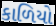
કાળિયો